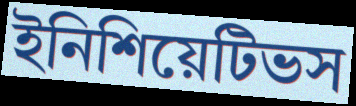
ইনিশিয়েটিভস